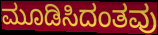
ಮೂಡಿಸಿದಂತವು